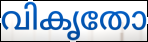
വികൃതോ